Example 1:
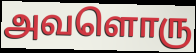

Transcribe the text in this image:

அவளொரு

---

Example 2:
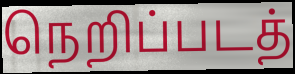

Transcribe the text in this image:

நெறிப்படத்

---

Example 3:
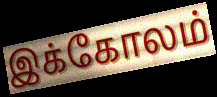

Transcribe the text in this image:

இக்கோலம்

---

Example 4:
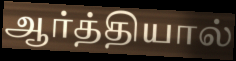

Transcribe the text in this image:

ஆர்த்தியால்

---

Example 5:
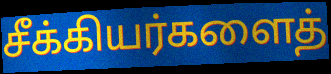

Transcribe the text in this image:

சீக்கியர்களைத்